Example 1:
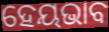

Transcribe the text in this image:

ହେୟଭାବ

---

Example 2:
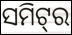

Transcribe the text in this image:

ସମିଟ୍‌ର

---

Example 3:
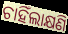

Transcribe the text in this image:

ଚାହିଁଲାକ୍ଷଣି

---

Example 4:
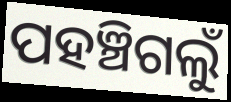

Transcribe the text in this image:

ପହଞ୍ଚିଗଲୁଁ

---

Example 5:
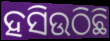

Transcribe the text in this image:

ହସିଉଠିଛି